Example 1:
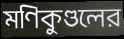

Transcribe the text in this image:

মণিকুণ্ডলের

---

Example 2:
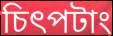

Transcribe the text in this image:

চিৎপটাং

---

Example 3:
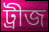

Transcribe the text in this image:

ট্রীজ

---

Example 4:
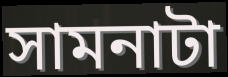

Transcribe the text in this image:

সামনাটা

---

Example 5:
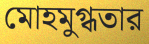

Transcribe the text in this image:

মোহমুগ্ধতার